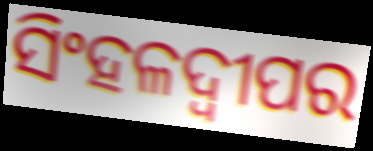
ସିଂହଳଦ୍ୱୀପର